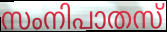
സംനിപാതസ്